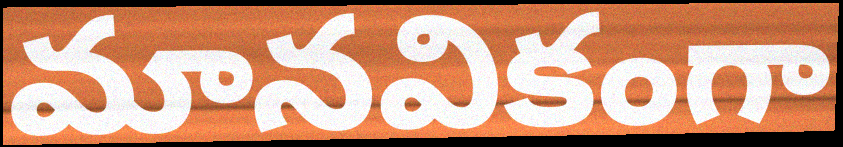
మానవికంగా